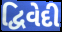
દ્વિવેદી